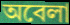
অবেলা